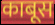
काबूस